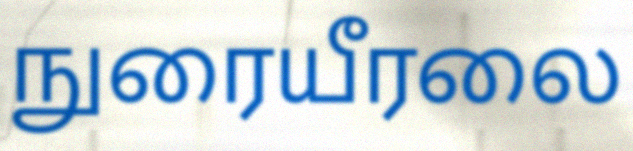
நுரையீரலை